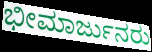
ಭೀಮಾರ್ಜುನರು